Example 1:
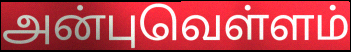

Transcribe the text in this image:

அன்புவெள்ளம்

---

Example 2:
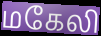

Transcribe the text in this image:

மகேலி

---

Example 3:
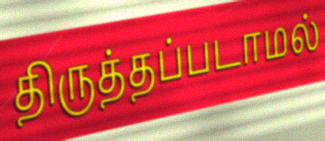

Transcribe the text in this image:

திருத்தப்படாமல்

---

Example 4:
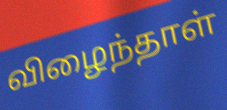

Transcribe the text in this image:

விழைந்தாள்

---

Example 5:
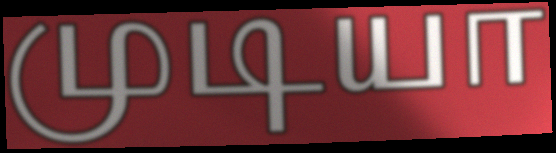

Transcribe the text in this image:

முடியா